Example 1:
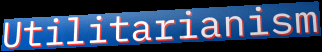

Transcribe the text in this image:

Utilitarianism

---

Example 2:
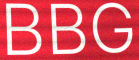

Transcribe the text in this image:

BBG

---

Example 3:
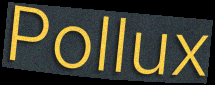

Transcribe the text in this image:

Pollux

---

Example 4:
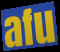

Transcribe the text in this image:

afu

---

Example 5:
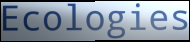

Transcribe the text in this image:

Ecologies